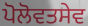
ਪੋਲੋਵਤਸੇਵ